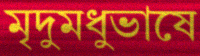
মৃদুমধুভাষে